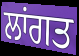
ਲਾਂਗਤ